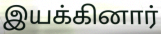
இயக்கினார்